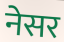
नेसर